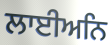
ਲਾਈਅਨਿ